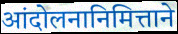
आंदोलनानिमित्ताने